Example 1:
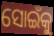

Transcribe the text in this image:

ସୋଇଁକୁ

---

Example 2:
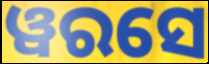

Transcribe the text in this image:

ୱରସେ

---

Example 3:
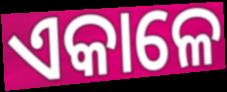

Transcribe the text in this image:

ଏକାଳେ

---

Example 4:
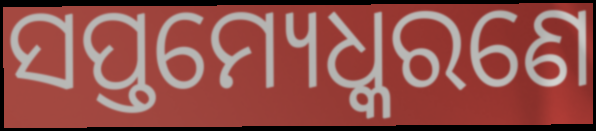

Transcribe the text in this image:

ସପ୍ତମ୍ୟେଧ୍କରଣେ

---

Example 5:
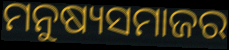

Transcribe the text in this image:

ମନୁଷ୍ୟସମାଜର